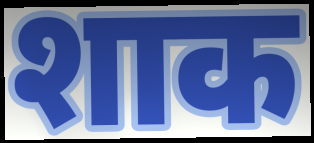
शाक